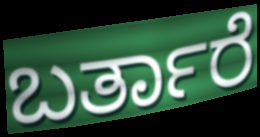
ಬರ್ತಾರೆ